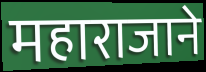
महाराजाने